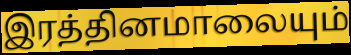
இரத்தினமாலையும்